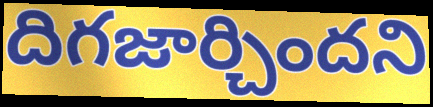
దిగజార్చిందని